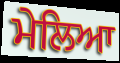
ਮੇਲਿਆ